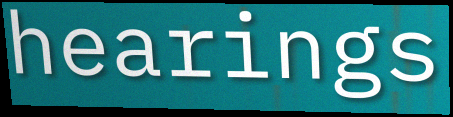
hearings